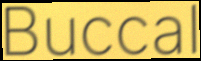
Buccal